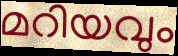
മറിയവും